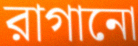
রাগানো